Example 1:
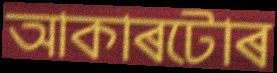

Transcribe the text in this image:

আকাৰটোৰ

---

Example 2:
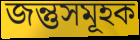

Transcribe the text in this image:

জন্তুসমূহক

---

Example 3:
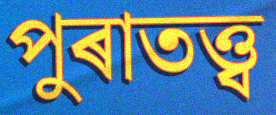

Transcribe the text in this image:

পুৰাতত্ত্ব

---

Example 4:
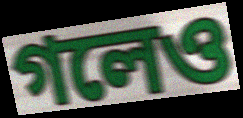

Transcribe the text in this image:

গলেও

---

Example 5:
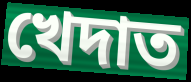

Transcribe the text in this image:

খেদাত